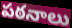
పఠనాలు